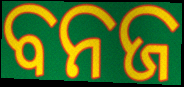
ବନଜ